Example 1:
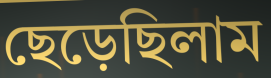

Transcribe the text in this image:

ছেড়েছিলাম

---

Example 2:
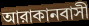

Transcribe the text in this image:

আরাকানবাসী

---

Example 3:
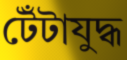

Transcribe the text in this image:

টেঁটাযুদ্ধ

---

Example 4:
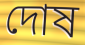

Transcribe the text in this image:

দোষ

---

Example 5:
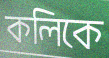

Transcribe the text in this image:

কলিকে